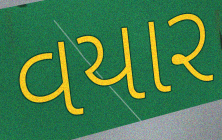
વયાર